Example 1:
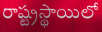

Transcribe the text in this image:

రాష్ట్రస్థాయిలో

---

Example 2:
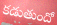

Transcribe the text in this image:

కడుతుందో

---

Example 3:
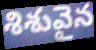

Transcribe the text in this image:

శిశువైన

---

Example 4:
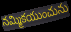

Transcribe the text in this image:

నమ్మికయుంచును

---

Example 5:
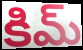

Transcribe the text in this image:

కిమ్